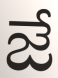
జే